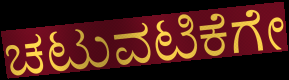
ಚಟುವಟಿಕೆಗೇ